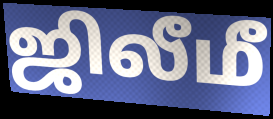
ஜிலீமீ